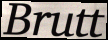
Brutt